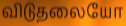
விடுதலையோ